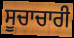
ਸੂਚਾਚਾਰੀ